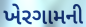
ખેરગામની